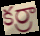
కర్రా